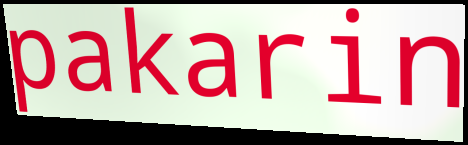
pakarin